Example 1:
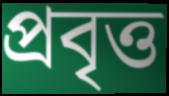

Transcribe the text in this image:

প্ৰবৃত্ত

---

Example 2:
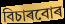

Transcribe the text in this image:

বিচাৰবোৰ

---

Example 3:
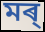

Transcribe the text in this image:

মৰ্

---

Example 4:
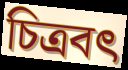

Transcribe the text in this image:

চিত্ৰবৎ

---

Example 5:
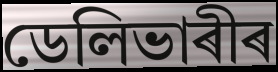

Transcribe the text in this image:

ডেলিভাৰীৰ